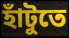
হাঁটুতে